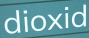
dioxid